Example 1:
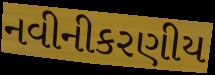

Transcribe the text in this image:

નવીનીકરણીય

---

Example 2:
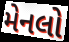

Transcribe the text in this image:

મેનલો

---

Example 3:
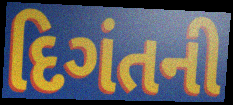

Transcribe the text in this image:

દિગંતની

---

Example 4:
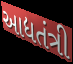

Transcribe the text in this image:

આદ્યતંત્રી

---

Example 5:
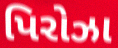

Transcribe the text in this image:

પિરોઝા